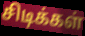
சிடிக்கள்